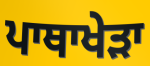
ਪਾਥਾਖੇੜਾ